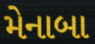
મેનાબા